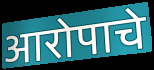
आरोपाचे